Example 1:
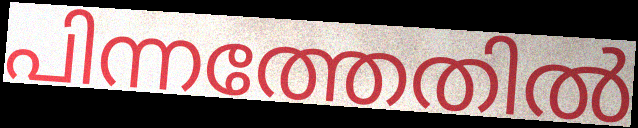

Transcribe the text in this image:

പിന്നത്തേതിൽ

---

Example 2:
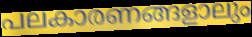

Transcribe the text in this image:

പലകാരണങ്ങളാലും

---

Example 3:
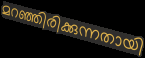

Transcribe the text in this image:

മറഞ്ഞിരിക്കുന്നതായി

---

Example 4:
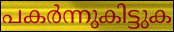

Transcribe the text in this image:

പകർന്നുകിട്ടുക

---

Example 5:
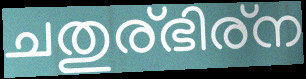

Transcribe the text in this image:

ചതുര്ഭിര്ന